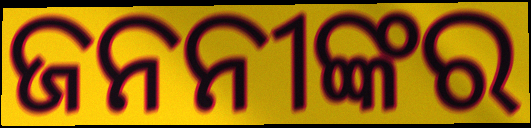
ଜନନୀଙ୍କର